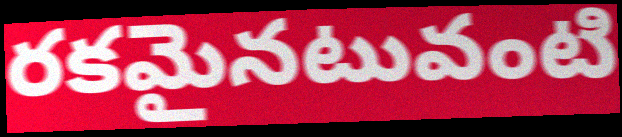
రకమైనటువంటి